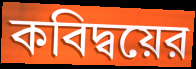
কবিদ্বয়ের